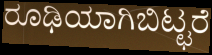
ರೂಢಿಯಾಗಿಬಿಟ್ಟರೆ